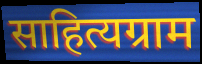
साहित्यग्राम